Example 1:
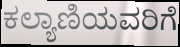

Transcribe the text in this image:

ಕಲ್ಯಾಣಿಯವರಿಗೆ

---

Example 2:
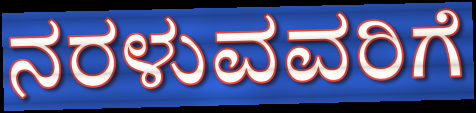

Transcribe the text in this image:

ನರಳುವವರಿಗೆ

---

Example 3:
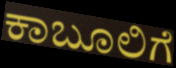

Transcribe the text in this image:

ಕಾಬೂಲಿಗೆ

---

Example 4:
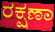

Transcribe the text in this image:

ರಕ್ಷಣಾ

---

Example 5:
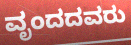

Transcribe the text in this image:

ವೃಂದದವರು